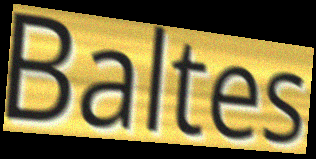
Baltes